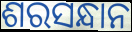
ଶରସନ୍ଧାନ